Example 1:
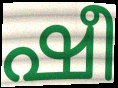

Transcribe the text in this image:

ഷീ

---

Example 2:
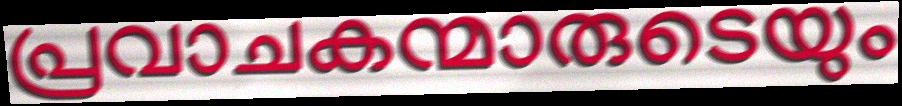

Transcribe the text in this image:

പ്രവാചകന്മാരുടെയും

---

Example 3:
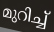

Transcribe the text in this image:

മുറിച്ച്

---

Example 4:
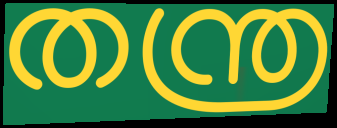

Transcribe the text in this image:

തന്ത്ര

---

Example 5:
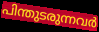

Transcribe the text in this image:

പിന്തുടരുന്നവർ